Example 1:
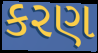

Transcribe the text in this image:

કરણ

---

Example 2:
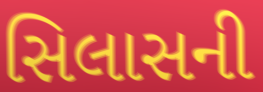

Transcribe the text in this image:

સિલાસની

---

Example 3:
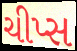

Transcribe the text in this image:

ચીપ્સ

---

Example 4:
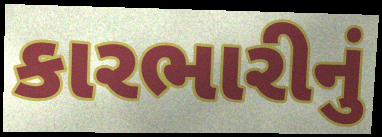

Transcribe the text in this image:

કારભારીનું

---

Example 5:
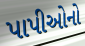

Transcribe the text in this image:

પાપીઓનો